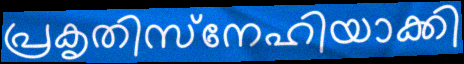
പ്രകൃതിസ്‌നേഹിയാക്കി